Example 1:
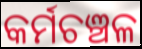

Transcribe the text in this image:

କର୍ମଚଞ୍ଚଳ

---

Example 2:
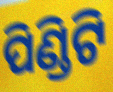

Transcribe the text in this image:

ପିଣ୍ଡିଟି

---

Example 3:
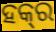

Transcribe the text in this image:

ହକ୍‌ର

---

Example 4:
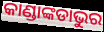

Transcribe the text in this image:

କାଣ୍ଡାଙ୍କଡାଭୁର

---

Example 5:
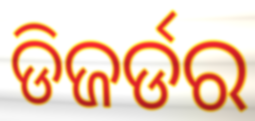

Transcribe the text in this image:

ଡିଜର୍ଡର